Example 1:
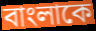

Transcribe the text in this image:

বাংলাকে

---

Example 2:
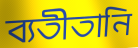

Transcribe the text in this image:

ব্যতীতানি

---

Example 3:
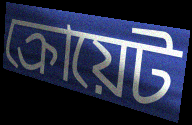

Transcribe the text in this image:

ক্রোয়েট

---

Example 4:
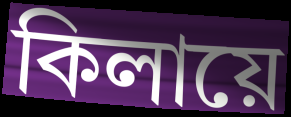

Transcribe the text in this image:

কিলায়ে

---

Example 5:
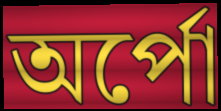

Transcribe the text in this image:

অর্পো